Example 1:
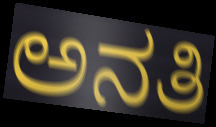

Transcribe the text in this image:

ಅನತಿ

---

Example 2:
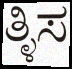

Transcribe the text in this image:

ತ್ಳಿಸ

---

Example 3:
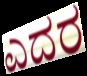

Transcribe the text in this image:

ಎದರ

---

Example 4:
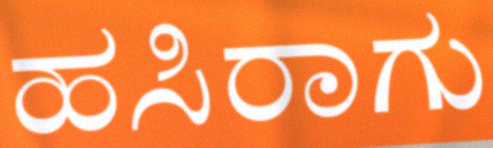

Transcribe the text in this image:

ಹಸಿರಾಗು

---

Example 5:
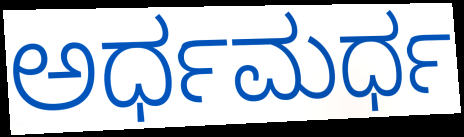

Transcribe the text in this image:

ಅರ್ಧಮರ್ಧ